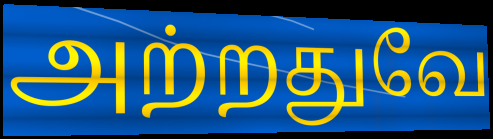
அற்றதுவே